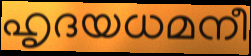
ഹൃദയധമനീ